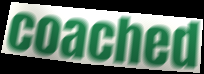
coached